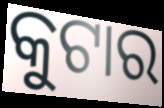
କୁଟାର